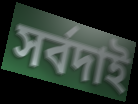
সর্বদাই